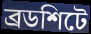
ব্রডশিটে